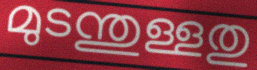
മുടന്തുള്ളതു